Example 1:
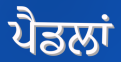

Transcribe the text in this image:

ਪੈਡਲਾਂ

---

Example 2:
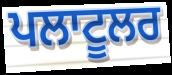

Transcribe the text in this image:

ਪਲਾਟੂਲਰ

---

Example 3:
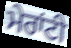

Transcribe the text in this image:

ਮੇਰਾਂਟੀ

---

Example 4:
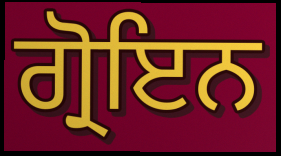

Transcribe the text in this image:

ਗ੍ਰੋਇਨ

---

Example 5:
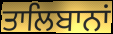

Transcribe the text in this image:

ਤਾਲਿਬਾਨਾਂ